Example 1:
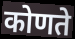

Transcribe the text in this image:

कोणते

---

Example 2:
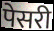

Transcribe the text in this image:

पेसरी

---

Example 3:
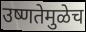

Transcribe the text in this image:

उष्णतेमुळेच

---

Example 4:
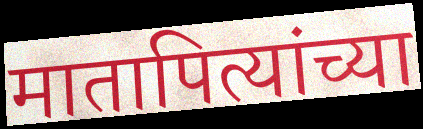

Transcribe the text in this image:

मातापित्यांच्या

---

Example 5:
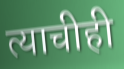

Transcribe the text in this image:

त्याचीही